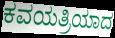
ಕವಯತ್ರಿಯಾದ